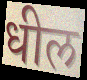
धील